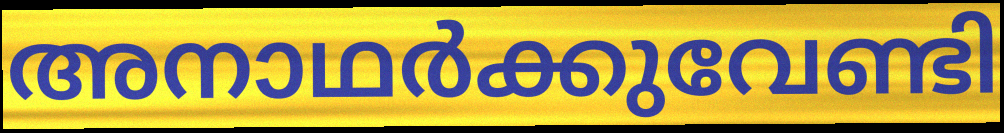
അനാഥർക്കുവേണ്ടി